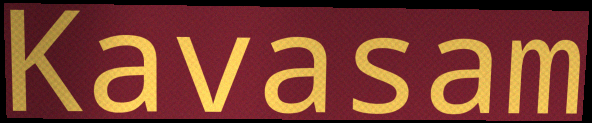
Kavasam